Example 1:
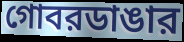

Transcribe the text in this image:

গোবরডাঙার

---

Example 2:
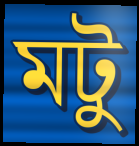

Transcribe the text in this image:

মটু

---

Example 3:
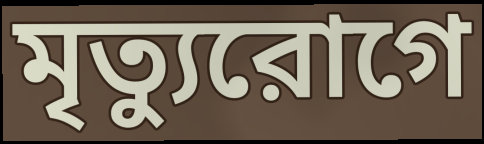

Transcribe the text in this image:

মৃত্যুরোগে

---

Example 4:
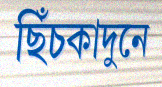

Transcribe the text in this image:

ছিঁচকাদুনে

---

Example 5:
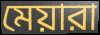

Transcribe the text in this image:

মেয়ারা